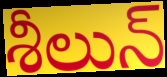
శీలున్